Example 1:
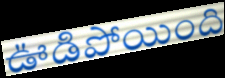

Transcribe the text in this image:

ఊడిపోయింది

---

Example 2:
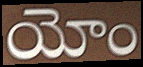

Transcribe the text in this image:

యోం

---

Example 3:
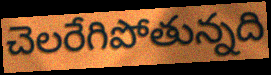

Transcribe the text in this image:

చెలరేగిపోతున్నది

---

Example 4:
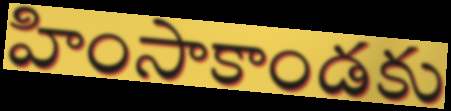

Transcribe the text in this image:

హింసాకాండకు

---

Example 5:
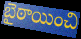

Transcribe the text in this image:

బైఠాయించి